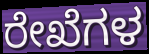
ರೇಖೆಗಳ